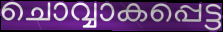
ചൊവ്വാകപ്പെട്ട